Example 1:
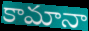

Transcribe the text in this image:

కామానా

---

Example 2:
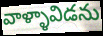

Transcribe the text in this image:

వాళ్ళావిడను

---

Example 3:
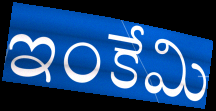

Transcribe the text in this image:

ఇంకేమి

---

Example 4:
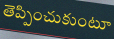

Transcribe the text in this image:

తెప్పించుకుంటూ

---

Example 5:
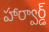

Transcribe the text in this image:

హార్వార్డ్